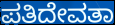
ಪತಿದೇವತಾ